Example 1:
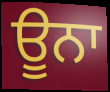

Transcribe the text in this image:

ਊਨਾ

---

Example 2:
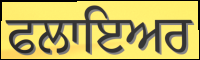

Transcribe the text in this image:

ਫਲਾਇਅਰ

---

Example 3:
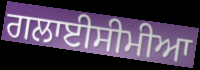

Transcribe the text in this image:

ਗਲਾਈਸੀਮੀਆ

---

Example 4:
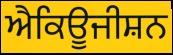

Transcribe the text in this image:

ਐਕਿਊਜੀਸ਼ਨ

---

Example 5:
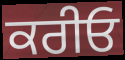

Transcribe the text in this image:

ਕਰੀਓ